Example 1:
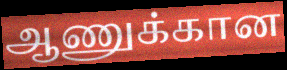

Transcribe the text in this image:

ஆணுக்கான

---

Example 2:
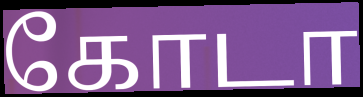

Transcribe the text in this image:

கோடா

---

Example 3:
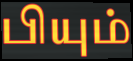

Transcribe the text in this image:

பியும்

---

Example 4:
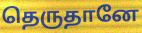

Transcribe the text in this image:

தெருதானே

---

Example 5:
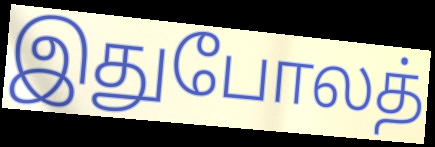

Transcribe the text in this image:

இதுபோலத்